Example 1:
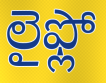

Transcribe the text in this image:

లైఫ్లో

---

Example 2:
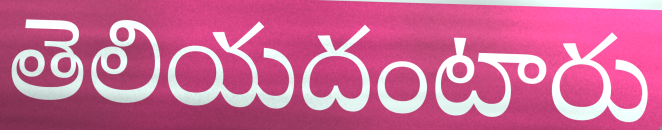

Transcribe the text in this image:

తెలియదంటారు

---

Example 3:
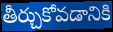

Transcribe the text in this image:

తీర్చుకోవడానికి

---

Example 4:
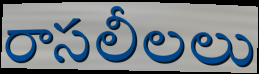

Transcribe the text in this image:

రాసలీలలు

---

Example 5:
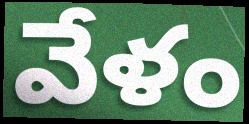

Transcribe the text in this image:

వేళం